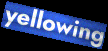
yellowing